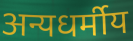
अन्यधर्मीय